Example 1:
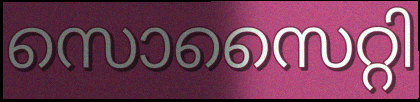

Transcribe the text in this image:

സൊസൈറ്റി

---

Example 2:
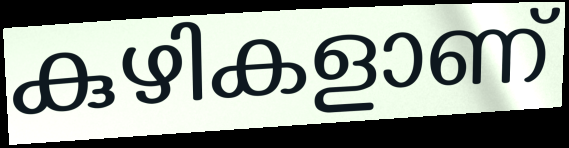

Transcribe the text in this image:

കുഴികളാണ്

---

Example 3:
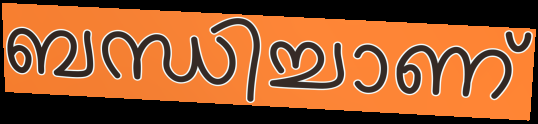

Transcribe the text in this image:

ബന്ധിച്ചാണ്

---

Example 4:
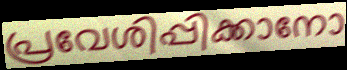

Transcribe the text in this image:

പ്രവേശിപ്പിക്കാനോ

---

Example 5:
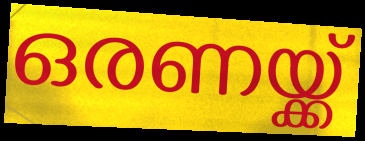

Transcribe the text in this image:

ഒരണയ്ക്ക്